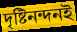
দৃষ্টিনন্দনই